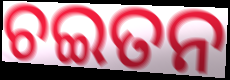
ଚଇତନ